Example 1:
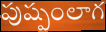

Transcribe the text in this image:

పుష్పంలాగ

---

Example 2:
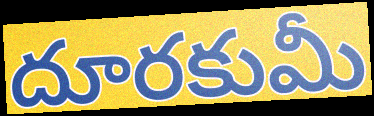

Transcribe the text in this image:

దూరకుమీ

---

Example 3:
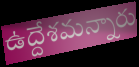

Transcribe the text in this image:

ఉద్దేశమన్నారు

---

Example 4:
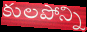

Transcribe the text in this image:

కులపోన్ని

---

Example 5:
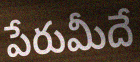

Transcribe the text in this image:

పేరుమీదే